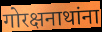
गोरक्षनाथांना